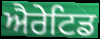
ਐਰੇਟਿਡ